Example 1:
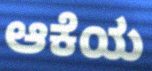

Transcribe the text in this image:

ಆಕೆಯ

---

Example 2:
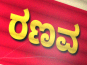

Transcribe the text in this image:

ರಣವ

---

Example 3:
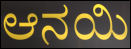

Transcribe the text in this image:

ಆನಯಿ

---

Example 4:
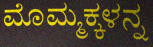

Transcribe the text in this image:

ಮೊಮ್ಮಕ್ಕಳನ್ನ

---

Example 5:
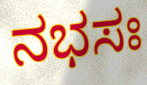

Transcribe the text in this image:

ನಭಸಃ